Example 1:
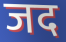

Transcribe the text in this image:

जद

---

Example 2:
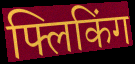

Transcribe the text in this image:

फ्लिकिंग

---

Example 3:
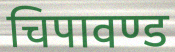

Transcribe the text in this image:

चिपावण्ड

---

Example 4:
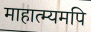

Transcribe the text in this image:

माहात्म्यमपि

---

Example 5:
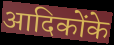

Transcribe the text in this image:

आदिकोंके